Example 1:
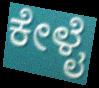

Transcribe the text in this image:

ಕೇಳೈ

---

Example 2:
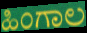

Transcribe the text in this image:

ಹಿಂಗಾಲ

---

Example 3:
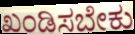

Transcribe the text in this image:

ಖಂಡಿಸಬೇಕು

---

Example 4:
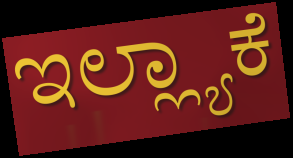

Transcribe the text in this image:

ಇಲ್ಲ್ಯಾಕೆ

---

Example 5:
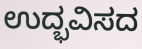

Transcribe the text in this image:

ಉದ್ಭವಿಸದ